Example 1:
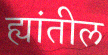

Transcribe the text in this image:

ह्यांतील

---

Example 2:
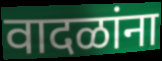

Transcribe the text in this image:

वादळांना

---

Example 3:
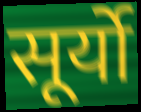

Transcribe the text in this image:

सूर्यो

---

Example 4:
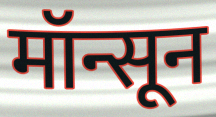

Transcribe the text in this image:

मॉन्सून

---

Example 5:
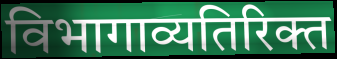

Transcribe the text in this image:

विभागाव्यतिरिक्त